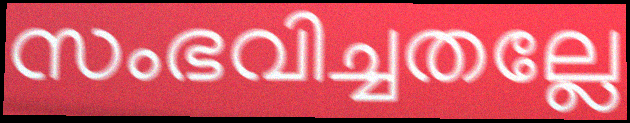
സംഭവിച്ചതല്ലേ